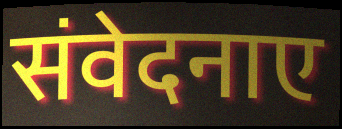
संवेदनाए